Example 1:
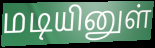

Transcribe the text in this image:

மடியினுள்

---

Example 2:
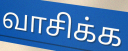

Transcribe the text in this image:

வாசிக்க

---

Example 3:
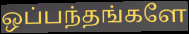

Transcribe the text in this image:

ஒப்பந்தங்களே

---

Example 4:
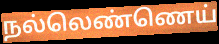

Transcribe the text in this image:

நல்லெண்ணெய்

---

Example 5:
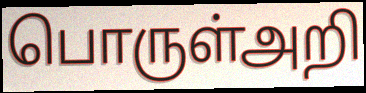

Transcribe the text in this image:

பொருள்அறி